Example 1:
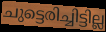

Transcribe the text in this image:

ചുട്ടെരിച്ചിട്ടില്ല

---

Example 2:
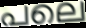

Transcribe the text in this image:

പലെ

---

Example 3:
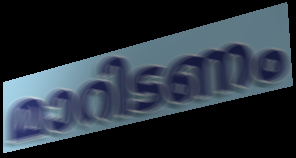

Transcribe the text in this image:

മാറിടണം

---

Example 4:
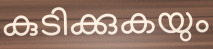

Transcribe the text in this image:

കുടിക്കുകയും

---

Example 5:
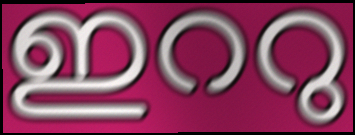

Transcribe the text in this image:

ഇററു